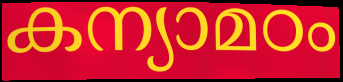
കന്യാമഠം